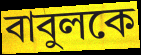
বাবুলকে